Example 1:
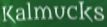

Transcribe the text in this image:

Kalmucks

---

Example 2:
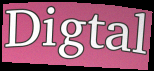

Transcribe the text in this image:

Digtal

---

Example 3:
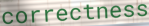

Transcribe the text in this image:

correctness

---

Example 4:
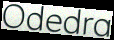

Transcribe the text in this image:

Odedra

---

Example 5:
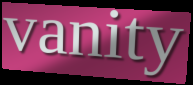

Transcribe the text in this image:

vanity